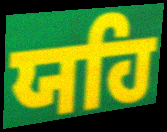
ਯਹਿ